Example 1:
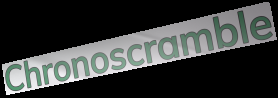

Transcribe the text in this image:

Chronoscramble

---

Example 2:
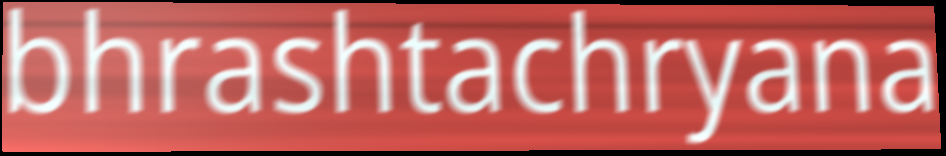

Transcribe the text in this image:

bhrashtachryana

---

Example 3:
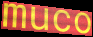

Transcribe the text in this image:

muco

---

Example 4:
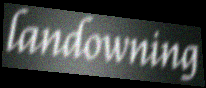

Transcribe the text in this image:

landowning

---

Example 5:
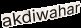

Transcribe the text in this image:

akdiwahar